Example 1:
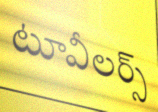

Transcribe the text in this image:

టూవీలర్స్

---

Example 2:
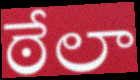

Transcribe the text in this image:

ఠేలా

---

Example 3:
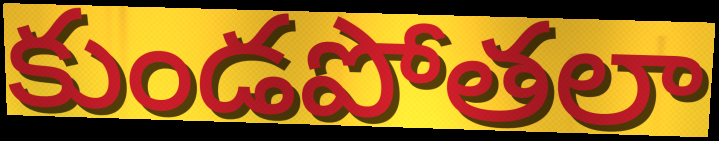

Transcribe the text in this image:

కుండపోతలా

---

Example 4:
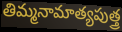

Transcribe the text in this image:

తిమ్మనామాత్యపుత్త్ర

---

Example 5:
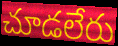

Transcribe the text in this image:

చూడలేరు